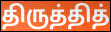
திருத்தித்